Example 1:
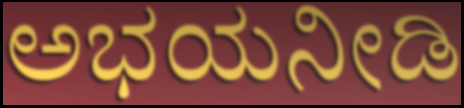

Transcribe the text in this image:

ಅಭಯನೀಡಿ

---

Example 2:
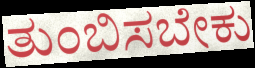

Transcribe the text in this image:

ತುಂಬಿಸಬೇಕು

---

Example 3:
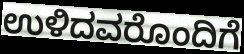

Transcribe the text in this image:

ಉಳಿದವರೊಂದಿಗೆ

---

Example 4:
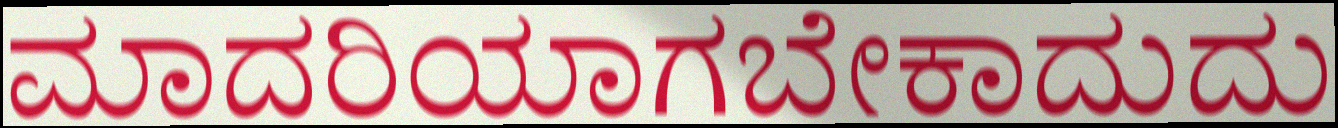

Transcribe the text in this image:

ಮಾದರಿಯಾಗಬೇಕಾದುದು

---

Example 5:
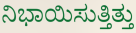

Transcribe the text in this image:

ನಿಭಾಯಿಸುತ್ತಿತ್ತು